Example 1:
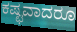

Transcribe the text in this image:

ಕಷ್ಟವಾದರೂ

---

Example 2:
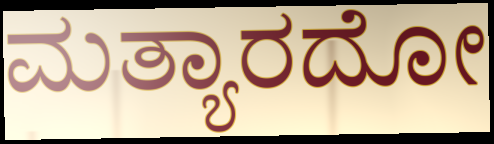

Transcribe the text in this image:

ಮತ್ಯಾರದೋ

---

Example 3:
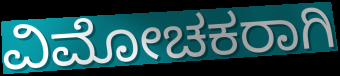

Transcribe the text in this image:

ವಿಮೋಚಕರಾಗಿ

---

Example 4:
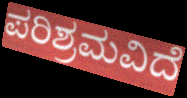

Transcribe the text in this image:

ಪರಿಶ್ರಮವಿದೆ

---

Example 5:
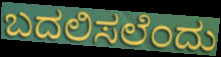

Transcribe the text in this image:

ಬದಲಿಸಲೆಂದು